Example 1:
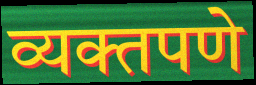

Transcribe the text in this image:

व्यक्तपणे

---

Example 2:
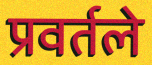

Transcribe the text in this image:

प्रवर्तले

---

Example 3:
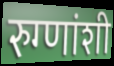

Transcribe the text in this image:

रुग्णांशी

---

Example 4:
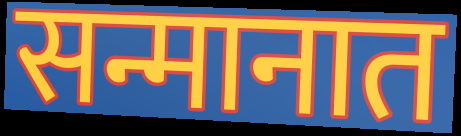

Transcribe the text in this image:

सन्मानात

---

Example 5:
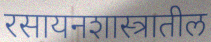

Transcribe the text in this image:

रसायनशास्त्रातील